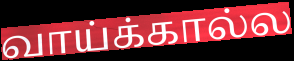
வாய்க்கால்ல